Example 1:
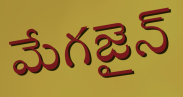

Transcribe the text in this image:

మేగజైన్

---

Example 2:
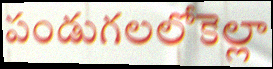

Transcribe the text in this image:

పండుగలలోకెల్లా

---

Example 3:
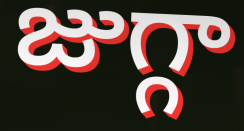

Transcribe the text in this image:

జుగ్గా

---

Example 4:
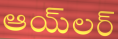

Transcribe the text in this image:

ఆయ్‌లర్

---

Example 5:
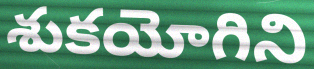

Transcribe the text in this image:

శుకయోగిని